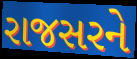
રાજસરને